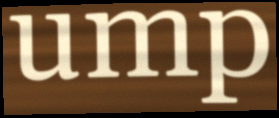
ump